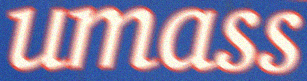
umass